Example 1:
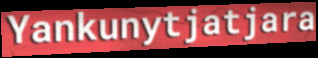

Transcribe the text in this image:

Yankunytjatjara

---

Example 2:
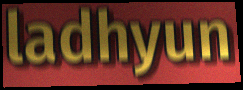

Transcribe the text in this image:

ladhyun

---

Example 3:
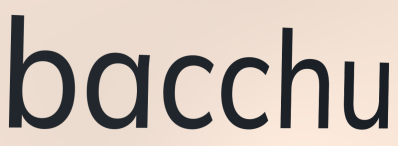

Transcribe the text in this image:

bacchu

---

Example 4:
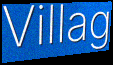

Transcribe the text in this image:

Villag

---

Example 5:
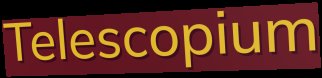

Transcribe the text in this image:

Telescopium